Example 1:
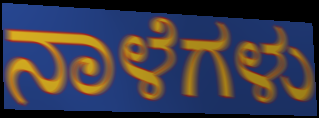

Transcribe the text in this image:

ನಾಳೆಗಳು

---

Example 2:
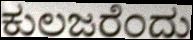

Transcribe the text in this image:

ಕುಲಜರೆಂದು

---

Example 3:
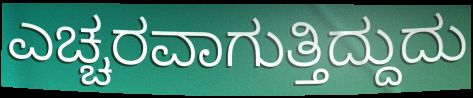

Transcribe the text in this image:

ಎಚ್ಚರವಾಗುತ್ತಿದ್ದುದು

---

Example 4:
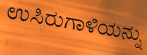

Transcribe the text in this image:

ಉಸಿರುಗಾಳಿಯನ್ನು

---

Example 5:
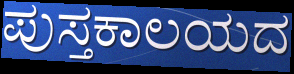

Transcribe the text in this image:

ಪುಸ್ತಕಾಲಯದ